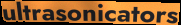
ultrasonicators